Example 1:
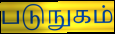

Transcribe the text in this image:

படுநுகம்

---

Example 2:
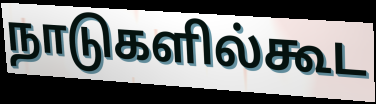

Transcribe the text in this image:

நாடுகளில்கூட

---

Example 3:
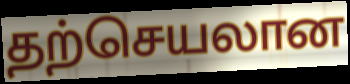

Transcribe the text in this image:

தற்செயலான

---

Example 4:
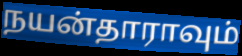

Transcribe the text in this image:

நயன்தாராவும்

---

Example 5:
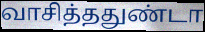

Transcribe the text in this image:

வாசித்ததுண்டா